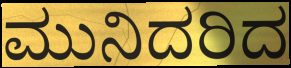
ಮುನಿದರಿದ